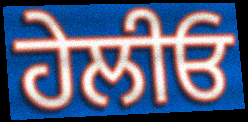
ਹੇਲੀਓ